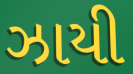
ઝાયી